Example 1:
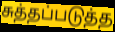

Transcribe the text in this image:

சுத்தப்படுத்த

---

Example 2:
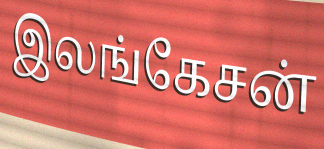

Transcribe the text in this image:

இலங்கேசன்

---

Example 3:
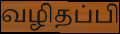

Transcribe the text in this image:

வழிதப்பி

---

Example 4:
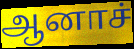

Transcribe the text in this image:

ஆனாச்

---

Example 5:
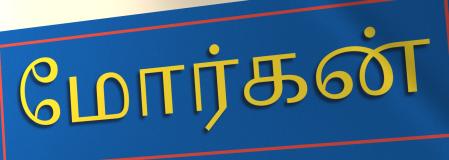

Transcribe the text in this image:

மோர்கன்